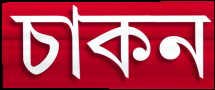
চাকন